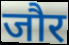
जौर